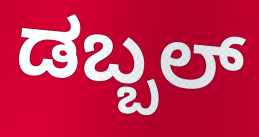
ಡಬ್ಬಲ್